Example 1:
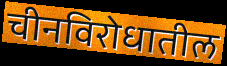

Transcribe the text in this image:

चीनविरोधातील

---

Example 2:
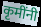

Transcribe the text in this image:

कृमींनी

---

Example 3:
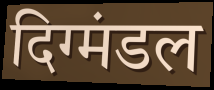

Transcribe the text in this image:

दिग्मंडल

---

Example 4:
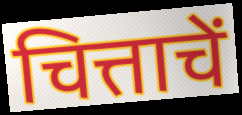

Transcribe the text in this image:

चित्ताचें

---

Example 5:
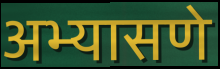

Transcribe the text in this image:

अभ्यासणे